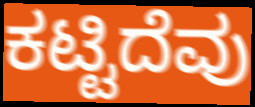
ಕಟ್ಟಿದೆವು